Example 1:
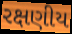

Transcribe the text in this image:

રક્ષણીય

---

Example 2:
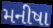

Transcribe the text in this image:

મનીષા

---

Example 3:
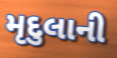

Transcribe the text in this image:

મૃદુલાની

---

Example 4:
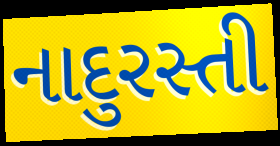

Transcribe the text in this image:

નાદુરસ્તી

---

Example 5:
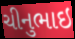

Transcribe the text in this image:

ચીનુભાઇ